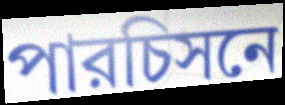
পারচিসনে